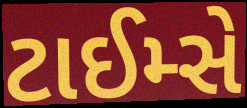
ટાઈમ્સે